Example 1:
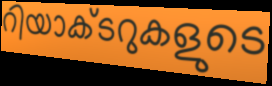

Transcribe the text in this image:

റിയാക്ടറുകളുടെ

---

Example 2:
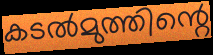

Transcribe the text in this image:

കടൽമുത്തിന്റെ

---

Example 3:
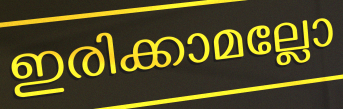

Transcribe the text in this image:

ഇരിക്കാമല്ലോ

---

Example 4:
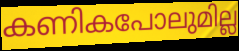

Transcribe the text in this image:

കണികപോലുമില്ല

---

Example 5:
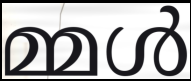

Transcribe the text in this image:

മ്മൾ